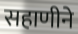
सहाणीने